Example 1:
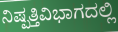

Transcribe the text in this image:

ನಿಷ್ಪತ್ತಿವಿಭಾಗದಲ್ಲಿ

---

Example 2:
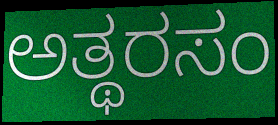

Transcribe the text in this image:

ಅತ್ಥರಸಂ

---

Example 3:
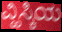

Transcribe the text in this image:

ವ್ಹಿಸ್ಕಿಯ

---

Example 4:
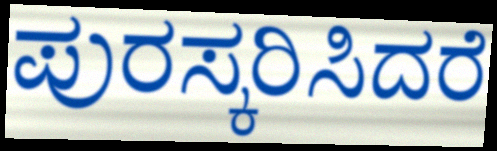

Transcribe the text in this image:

ಪುರಸ್ಕರಿಸಿದರೆ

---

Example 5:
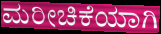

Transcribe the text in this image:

ಮರೀಚಿಕೆಯಾಗಿ